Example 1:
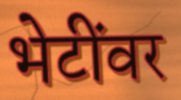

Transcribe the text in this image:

भेटींवर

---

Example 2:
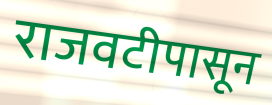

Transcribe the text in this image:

राजवटीपासून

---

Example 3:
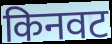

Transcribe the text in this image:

किनवट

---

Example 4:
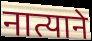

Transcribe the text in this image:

नात्याने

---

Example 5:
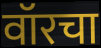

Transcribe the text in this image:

वॉरचा